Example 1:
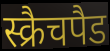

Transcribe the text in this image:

स्क्रैचपैड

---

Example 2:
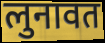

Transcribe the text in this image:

लुनावत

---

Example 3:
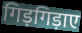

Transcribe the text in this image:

गिड़गिड़ाए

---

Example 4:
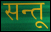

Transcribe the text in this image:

सन्तू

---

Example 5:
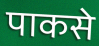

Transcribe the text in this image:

पाकसे